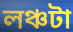
লঞ্চটা